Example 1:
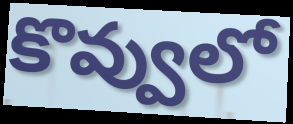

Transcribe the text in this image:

కొవ్వులో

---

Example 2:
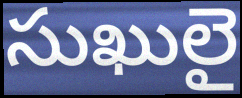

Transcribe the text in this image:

సుఖులై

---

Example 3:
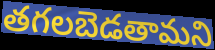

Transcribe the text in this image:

తగలబెడతామని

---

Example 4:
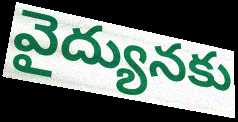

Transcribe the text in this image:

వైద్యునకు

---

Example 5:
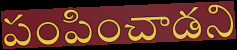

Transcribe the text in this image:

పంపించాడని